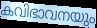
കവിഭാവനയും